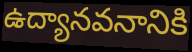
ఉద్యానవనానికి